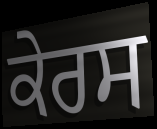
ਕੇਰਸ